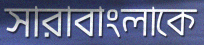
সারাবাংলাকে